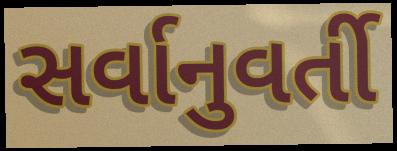
સર્વાનુવર્તી